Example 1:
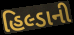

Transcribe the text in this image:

હિલ્ડાની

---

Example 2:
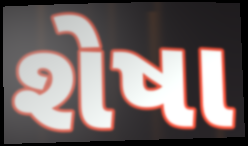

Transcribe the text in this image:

શેષા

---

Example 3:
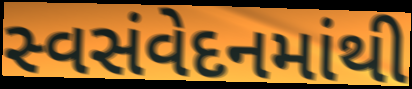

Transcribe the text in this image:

સ્વસંવેદનમાંથી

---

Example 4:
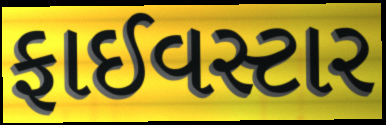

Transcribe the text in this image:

ફાઈવસ્ટાર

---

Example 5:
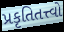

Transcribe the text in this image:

પ્રકૃતિતત્ત્વો